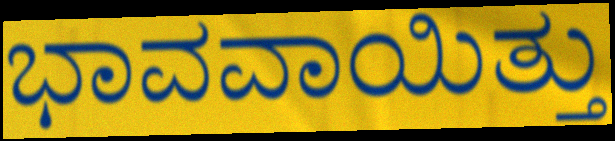
ಭಾವವಾಯಿತ್ತು